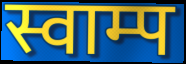
स्वाम्प